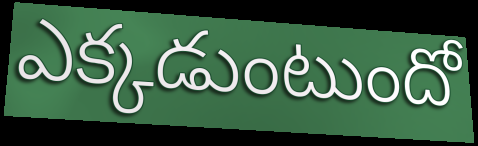
ఎక్కడుంటుందో